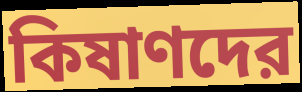
কিষাণদের